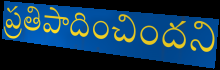
ప్రతిపాదించిందని